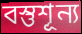
বস্তুশূন্য